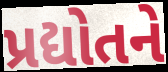
પ્રદ્યોતને